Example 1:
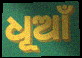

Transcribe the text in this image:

ଧୂଆଁ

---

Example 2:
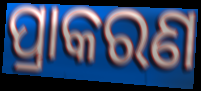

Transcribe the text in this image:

ପ୍ରାକରଣ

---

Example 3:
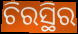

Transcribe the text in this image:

ଚିରସ୍ଥିର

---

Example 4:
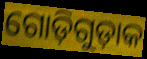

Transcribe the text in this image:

ଗୋଡ଼ିଗୁଡ଼ାକ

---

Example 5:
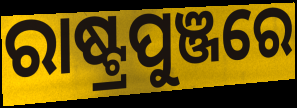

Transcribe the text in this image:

ରାଷ୍ଟ୍ରପୁଞ୍ଜରେ